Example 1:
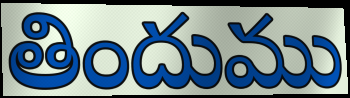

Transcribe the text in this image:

తిందుము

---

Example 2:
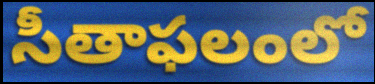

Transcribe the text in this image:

సీతాఫలంలో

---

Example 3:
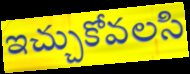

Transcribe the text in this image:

ఇచ్చుకోవలసి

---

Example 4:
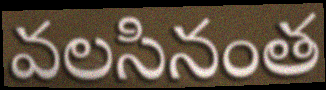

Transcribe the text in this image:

వలసినంత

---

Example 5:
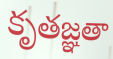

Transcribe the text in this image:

కృతజ్ఞతా